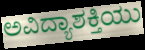
ಅವಿದ್ಯಾಶಕ್ತಿಯು